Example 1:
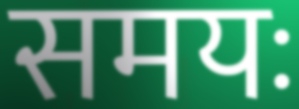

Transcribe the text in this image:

समयः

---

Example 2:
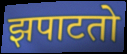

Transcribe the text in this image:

झपाटतो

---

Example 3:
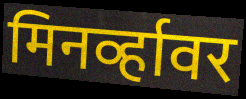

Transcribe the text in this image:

मिनर्व्हावर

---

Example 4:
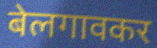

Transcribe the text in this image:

बेलगावकर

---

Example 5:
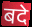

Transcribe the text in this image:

बदे